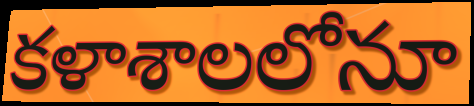
కళాశాలలోనూ